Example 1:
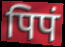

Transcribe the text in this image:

पिपं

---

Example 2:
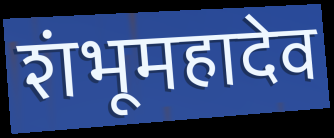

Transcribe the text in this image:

शंभूमहादेव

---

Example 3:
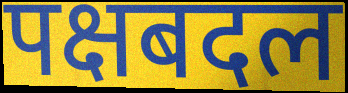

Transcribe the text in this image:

पक्षबदल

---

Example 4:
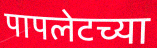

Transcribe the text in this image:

पापलेटच्या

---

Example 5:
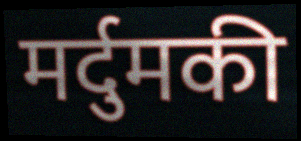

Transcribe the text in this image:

मर्दुमकी